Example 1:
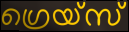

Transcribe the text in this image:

ഗ്രെയ്സ്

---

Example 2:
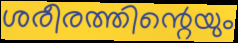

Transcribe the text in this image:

ശരീരത്തിന്റെയും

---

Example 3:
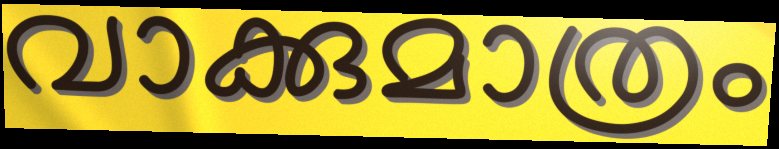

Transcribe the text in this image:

വാക്കുമാത്രം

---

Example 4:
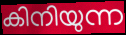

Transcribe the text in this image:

കിനിയുന്ന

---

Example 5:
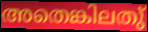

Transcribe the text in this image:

അതെങ്കിലതു്